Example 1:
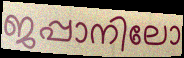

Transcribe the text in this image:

ജപ്പാനിലോ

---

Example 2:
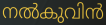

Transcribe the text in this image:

നൽകുവിൻ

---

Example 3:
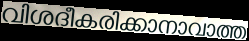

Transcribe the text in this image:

വിശദീകരിക്കാനാവാത്ത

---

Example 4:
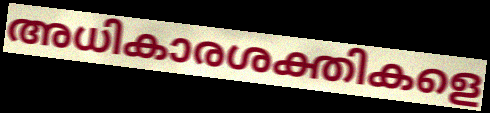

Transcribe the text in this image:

അധികാരശക്തികളെ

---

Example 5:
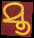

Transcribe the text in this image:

മൂ